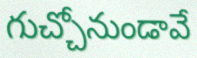
గుచ్చోనుండావే